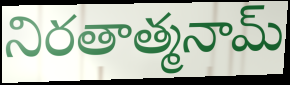
నిరతాత్మనామ్